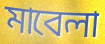
মাবেলা